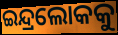
ଇନ୍ଦ୍ରଲୋକକୁ